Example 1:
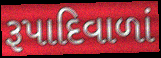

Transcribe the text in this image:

રૂપાદિવાળાં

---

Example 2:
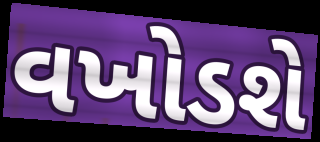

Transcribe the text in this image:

વખોડશે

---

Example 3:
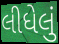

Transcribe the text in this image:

લીધેલું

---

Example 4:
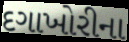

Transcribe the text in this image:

દગાખોરીના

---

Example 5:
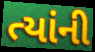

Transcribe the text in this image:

ત્યાંની